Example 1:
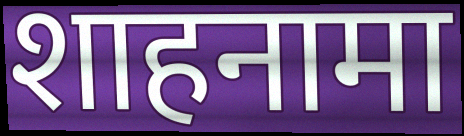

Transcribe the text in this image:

शाहनामा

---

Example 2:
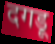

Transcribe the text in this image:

दगडू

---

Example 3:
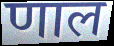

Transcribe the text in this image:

णाल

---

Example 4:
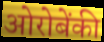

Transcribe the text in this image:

ओरोबेंकी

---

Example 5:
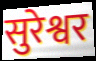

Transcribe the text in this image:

सुरेश्वर